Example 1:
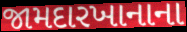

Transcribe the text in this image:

જામદારખાનાના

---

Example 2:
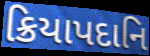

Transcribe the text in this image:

ક્રિયાપદાનિ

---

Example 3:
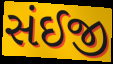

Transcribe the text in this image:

સંઈજી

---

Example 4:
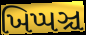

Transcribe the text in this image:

ખિપ્પઞ્ચ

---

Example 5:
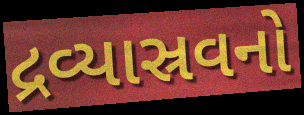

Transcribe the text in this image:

દ્રવ્યાસ્રવનો